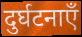
दुर्घटनाएँ